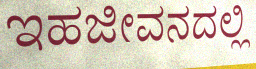
ಇಹಜೀವನದಲ್ಲಿ